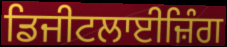
ਡਿਜੀਟਲਾਈਜ਼ਿੰਗ